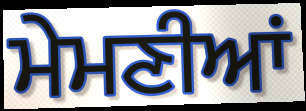
ਮੇਮਣੀਆਂ